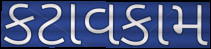
કટાવકામ